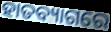
ହାତବ୍ୟାଗରେ